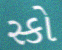
સ્કો